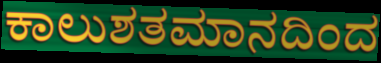
ಕಾಲುಶತಮಾನದಿಂದ